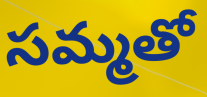
సమ్మతో